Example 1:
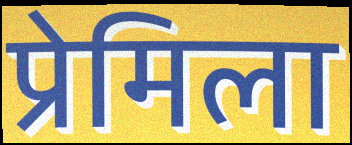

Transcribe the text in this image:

प्रेमिला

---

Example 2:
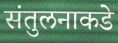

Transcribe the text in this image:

संतुलनाकडे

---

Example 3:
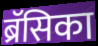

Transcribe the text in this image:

ब्रॅसिका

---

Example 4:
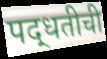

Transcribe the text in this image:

पद्धतीची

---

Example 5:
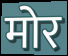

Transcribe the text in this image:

मोर